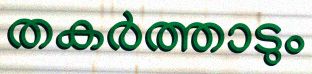
തകർത്താടും